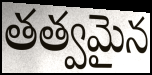
తత్వమైన